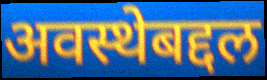
अवस्थेबद्दल